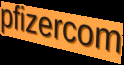
pfizercom